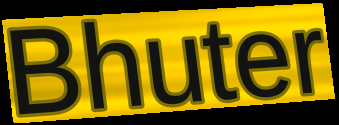
Bhuter